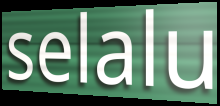
selalu